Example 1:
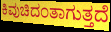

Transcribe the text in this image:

ಕಿವುಚಿದಂತಾಗುತ್ತದೆ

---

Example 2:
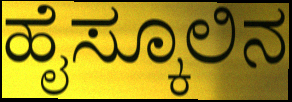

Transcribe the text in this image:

ಹೈಸ್ಕೂಲಿನ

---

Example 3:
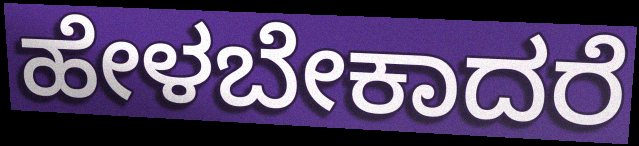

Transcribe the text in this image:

ಹೇಳಬೇಕಾದರೆ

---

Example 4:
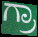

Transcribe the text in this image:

ಗ್ರಾ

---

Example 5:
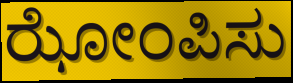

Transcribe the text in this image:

ಝೋಂಪಿಸು